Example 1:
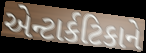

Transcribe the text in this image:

એન્ટાર્કટિકાને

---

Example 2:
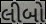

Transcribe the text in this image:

લીબો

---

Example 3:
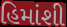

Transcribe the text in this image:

હિમાંશી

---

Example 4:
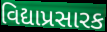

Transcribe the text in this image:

વિદ્યાપ્રસારક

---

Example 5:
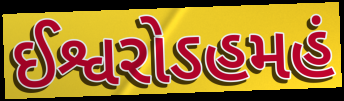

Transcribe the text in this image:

ઈશ્વરોઽહમહં